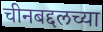
चीनबद्दलच्या